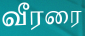
வீரரை